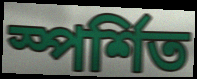
স্পর্শিত